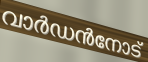
വാർഡൻനോട്